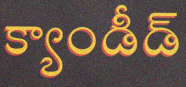
క్యాండీడ్